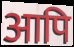
आपि